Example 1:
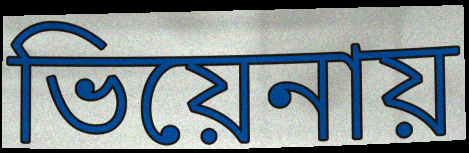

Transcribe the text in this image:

ভিয়েনায়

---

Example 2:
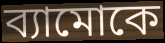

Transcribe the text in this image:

ব্যামোকে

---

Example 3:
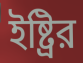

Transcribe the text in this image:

ইষ্ট্রির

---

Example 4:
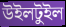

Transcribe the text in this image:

উইলটুইল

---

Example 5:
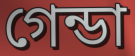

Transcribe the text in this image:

গেন্ডা